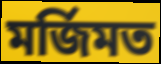
মর্জিমত